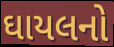
ઘાયલનો